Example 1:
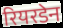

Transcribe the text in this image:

रियरडेन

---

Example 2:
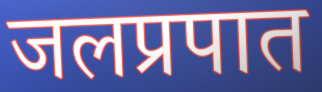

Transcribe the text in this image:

जलप्रपात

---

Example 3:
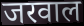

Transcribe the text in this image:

जरवाल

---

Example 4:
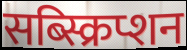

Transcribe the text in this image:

सब्स्क्रिप्शन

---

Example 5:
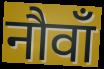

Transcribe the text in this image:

नौवाँ